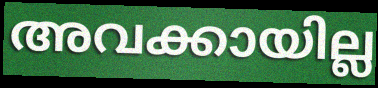
അവക്കായില്ല